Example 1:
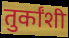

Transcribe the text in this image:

तुर्कांशी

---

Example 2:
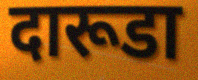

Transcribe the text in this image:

दारूडा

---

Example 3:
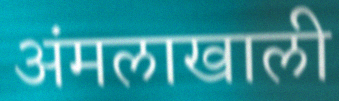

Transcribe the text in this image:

अंमलाखाली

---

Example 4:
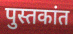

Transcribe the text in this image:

पुस्तकांत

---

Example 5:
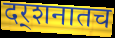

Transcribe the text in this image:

दर्शनातच